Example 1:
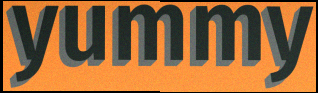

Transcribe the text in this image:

yummy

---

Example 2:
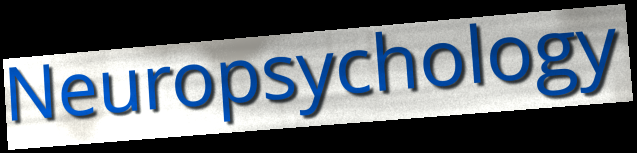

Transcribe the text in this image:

Neuropsychology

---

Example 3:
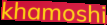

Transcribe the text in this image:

khamoshi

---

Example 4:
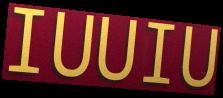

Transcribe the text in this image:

IUUIU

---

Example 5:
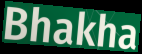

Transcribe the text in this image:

Bhakha